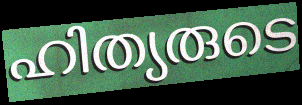
ഹിത്യരുടെ